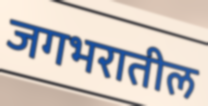
जगभरातील